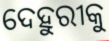
ଦେହୁରୀକୁ